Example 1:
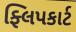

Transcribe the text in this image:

ફ્લિપકાર્ટ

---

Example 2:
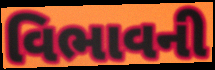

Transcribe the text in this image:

વિભાવની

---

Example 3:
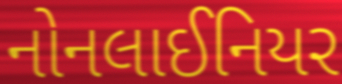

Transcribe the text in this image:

નોનલાઈનિયર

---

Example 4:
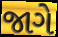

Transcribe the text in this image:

જાગે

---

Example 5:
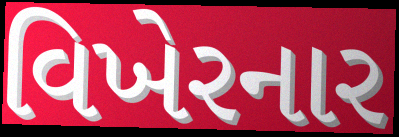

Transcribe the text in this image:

વિખેરનાર